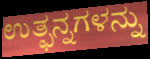
ಉತ್ಫನ್ನಗಳನ್ನು